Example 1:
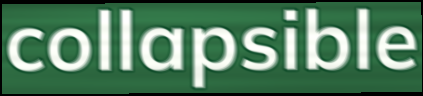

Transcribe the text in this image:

collapsible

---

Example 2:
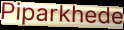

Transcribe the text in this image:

Piparkhede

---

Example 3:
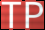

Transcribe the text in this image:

TP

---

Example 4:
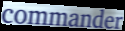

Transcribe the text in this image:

commander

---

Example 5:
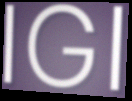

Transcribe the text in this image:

IGI